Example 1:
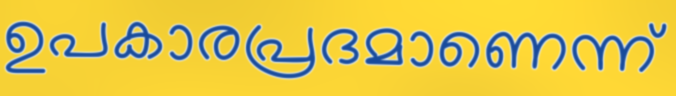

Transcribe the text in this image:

ഉപകാരപ്രദമാണെന്ന്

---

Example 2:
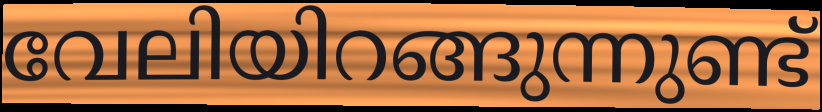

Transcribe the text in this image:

വേലിയിറങ്ങുന്നുണ്ട്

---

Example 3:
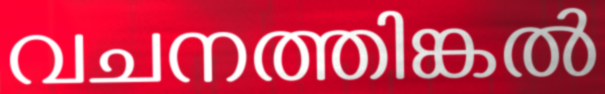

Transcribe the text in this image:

വചനത്തിങ്കൽ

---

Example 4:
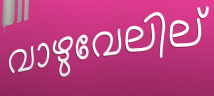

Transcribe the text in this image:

വാഴുവേലില്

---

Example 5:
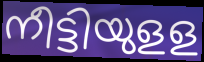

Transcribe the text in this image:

നീട്ടിയുളള